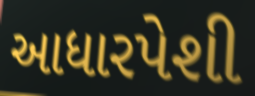
આધારપેશી